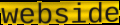
webside